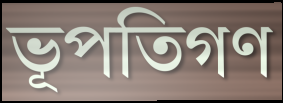
ভূপতিগণ